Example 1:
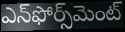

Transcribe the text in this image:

ఎన్‌ఫోర్స్‌మెంట్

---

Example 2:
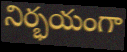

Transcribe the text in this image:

నిర్భయంగా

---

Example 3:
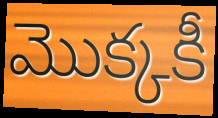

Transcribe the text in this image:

మొక్కకీ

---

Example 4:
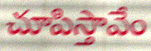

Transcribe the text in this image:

చూపిస్తావేం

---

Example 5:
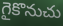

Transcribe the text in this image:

గైకొనుచు